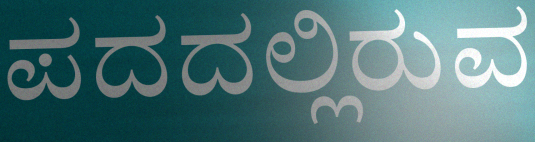
ಪದದಲ್ಲಿರುವ